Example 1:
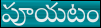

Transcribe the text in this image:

పూయటం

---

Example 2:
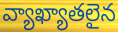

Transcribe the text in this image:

వ్యాఖ్యాతలైన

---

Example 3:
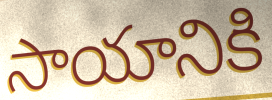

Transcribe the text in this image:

సాయానికి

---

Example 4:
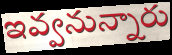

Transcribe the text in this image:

ఇవ్వనున్నారు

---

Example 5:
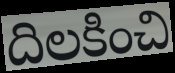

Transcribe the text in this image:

దిలకించి